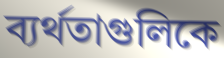
ব্যর্থতাগুলিকে